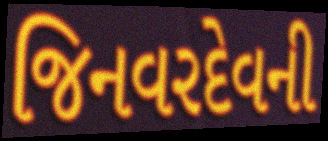
જિનવરદેવની